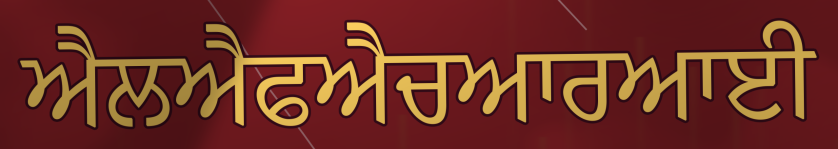
ਐਲਐਫਐਚਆਰਆਈ